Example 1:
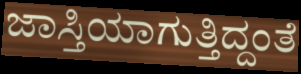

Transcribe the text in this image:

ಜಾಸ್ತಿಯಾಗುತ್ತಿದ್ದಂತೆ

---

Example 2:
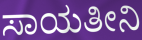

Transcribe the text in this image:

ಸಾಯತೀನಿ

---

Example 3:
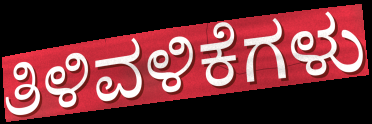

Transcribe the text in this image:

ತಿಳಿವಳಿಕೆಗಳು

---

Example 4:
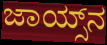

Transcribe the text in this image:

ಜಾಯ್ಸ್‌ನ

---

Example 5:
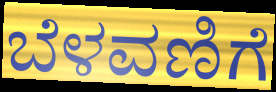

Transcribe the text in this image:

ಬೆಳವಣಿಗೆ